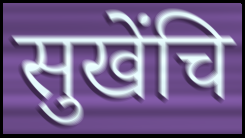
सुखेंचि